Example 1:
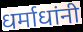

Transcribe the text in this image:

धर्माधांनी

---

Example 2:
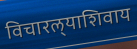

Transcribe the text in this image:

विचारल्याशिवाय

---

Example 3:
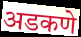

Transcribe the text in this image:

अडकणे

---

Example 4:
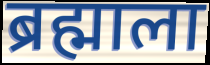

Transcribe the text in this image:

ब्रह्माला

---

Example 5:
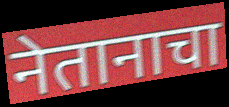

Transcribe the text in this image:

नेतानाचा